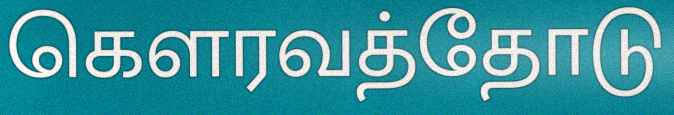
கௌரவத்தோடு